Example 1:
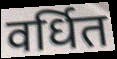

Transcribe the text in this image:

वर्धित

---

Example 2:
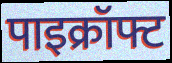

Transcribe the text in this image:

पाइक्रॉफ्ट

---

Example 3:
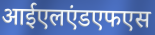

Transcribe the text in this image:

आईएलएंडएफएस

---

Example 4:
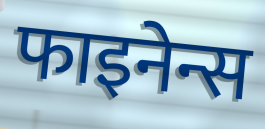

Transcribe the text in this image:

फाइनेन्स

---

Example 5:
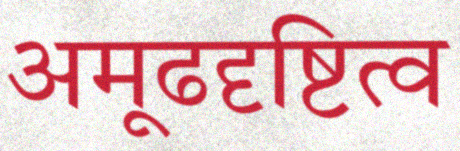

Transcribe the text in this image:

अमूढदृष्टित्व